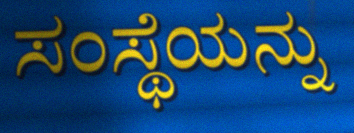
ಸಂಸ್ಥೆಯನ್ನು